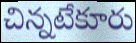
చిన్నటేకూరు